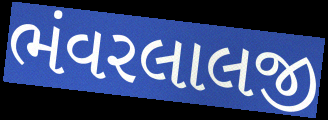
ભંવરલાલજી